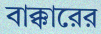
বাক্কারের